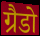
ग्रैडो